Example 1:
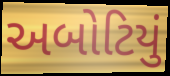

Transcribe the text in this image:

અબોટિયું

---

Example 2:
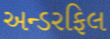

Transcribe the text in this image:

અન્ડરફિલ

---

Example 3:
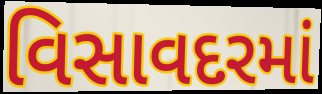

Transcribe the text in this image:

વિસાવદરમાં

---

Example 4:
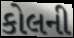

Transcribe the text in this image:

કોલની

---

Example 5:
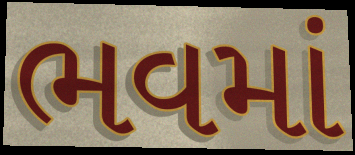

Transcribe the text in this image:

ભવમાં